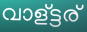
വാള്ട്ടര്